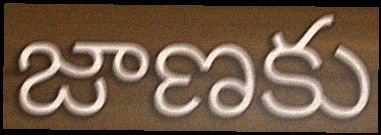
జాణకు